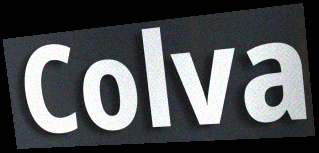
Colva